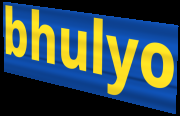
bhulyo